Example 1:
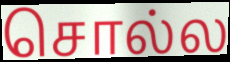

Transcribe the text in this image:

சொல்ல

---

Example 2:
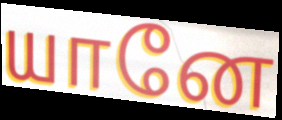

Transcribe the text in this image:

யானே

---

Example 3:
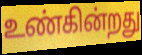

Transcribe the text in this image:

உண்கின்றது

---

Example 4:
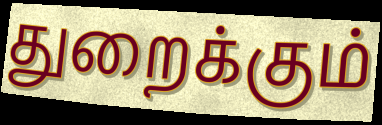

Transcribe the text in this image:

துறைக்கும்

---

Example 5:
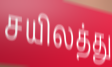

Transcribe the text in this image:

சயிலத்து